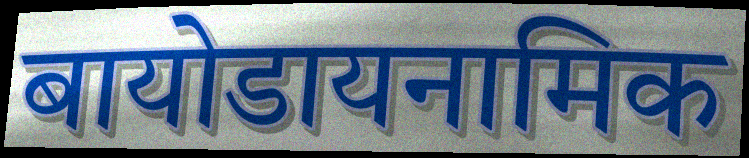
बायोडायनामिक